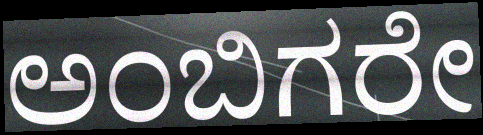
ಅಂಬಿಗರೇ